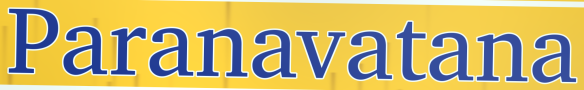
Paranavatana